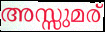
അസ്സുമര്